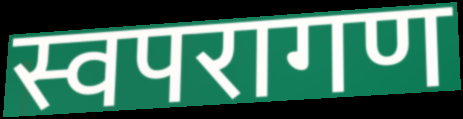
स्वपरागण